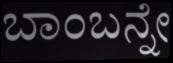
ಬಾಂಬನ್ನೇ